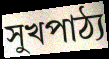
সুখপাঠ্য